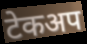
टेकअप